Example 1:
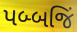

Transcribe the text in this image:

પબ્બજિં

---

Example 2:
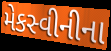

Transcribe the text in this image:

મેકસ્વીનીના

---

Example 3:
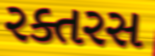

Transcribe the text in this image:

રક્તરસ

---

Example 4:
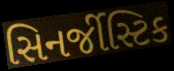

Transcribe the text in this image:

સિનર્જીસ્ટિક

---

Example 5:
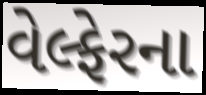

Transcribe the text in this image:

વેલ્ફેરના